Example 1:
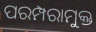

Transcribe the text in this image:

ପରମ୍ପରାମୁକ୍ତ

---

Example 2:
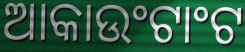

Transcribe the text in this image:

ଆକାଉଂଟାଂଟ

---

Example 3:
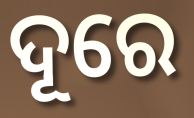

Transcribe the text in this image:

ଦୂରେ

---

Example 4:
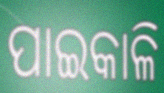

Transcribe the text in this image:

ପାଇକାଳି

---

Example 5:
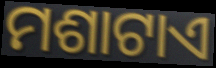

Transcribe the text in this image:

ମଶାଟାଏ